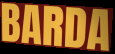
BARDA